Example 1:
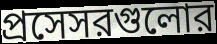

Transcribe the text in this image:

প্রসেসরগুলোর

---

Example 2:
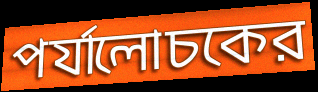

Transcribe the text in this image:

পর্যালোচকের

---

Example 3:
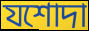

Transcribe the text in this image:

যশোদা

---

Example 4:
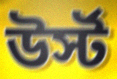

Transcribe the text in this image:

উর্স্ট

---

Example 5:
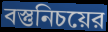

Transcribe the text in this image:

বস্তুনিচয়ের